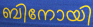
ബിനോയി